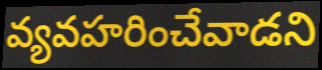
వ్యవహరించేవాడని